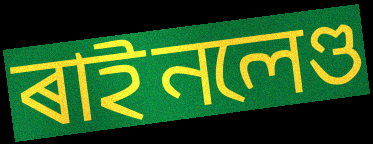
ৰাইনলেণ্ড